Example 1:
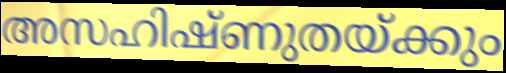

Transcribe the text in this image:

അസഹിഷ്ണുതയ്ക്കും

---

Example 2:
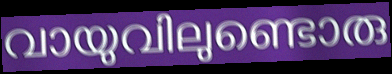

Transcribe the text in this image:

വായുവിലുണ്ടൊരു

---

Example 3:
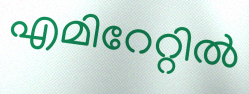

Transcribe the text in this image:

എമിറേറ്റിൽ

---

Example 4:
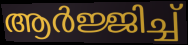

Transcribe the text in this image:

ആർജ്ജിച്ച്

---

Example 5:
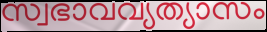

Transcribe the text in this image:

സ്വഭാവവ്യത്യാസം